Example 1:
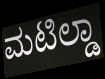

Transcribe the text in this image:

ಮಟಿಲ್ಡಾ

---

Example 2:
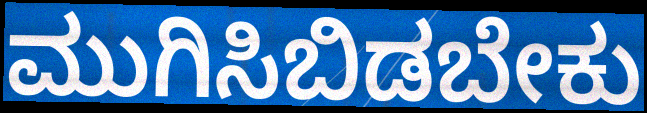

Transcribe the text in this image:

ಮುಗಿಸಿಬಿಡಬೇಕು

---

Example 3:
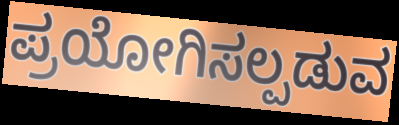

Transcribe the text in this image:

ಪ್ರಯೋಗಿಸಲ್ಪಡುವ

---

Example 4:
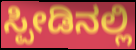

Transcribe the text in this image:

ಸ್ಪೀಡಿನಲ್ಲಿ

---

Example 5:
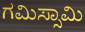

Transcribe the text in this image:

ಗಮಿಸ್ಸಾಮಿ